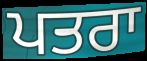
ਪਤਰਾ